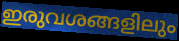
ഇരുവശങ്ങളിലും